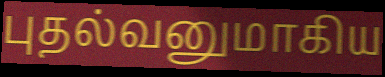
புதல்வனுமாகிய